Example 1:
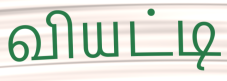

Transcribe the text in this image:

வியட்டி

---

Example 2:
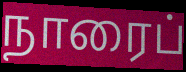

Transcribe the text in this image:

நாரைப்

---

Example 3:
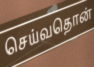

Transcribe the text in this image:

செய்வதொன்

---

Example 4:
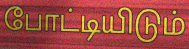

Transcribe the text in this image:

போட்டியிடும்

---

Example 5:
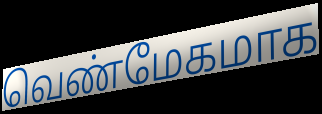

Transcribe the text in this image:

வெண்மேகமாக